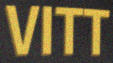
VITT